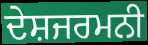
ਦੇਸ਼ਜਰਮਨੀ